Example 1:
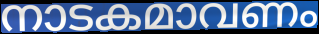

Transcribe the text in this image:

നാടകമാവണം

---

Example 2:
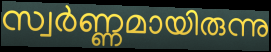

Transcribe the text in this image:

സ്വർണ്ണമായിരുന്നു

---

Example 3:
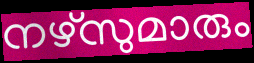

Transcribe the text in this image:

നഴ്സുമാരും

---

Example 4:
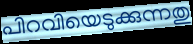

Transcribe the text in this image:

പിറവിയെടുക്കുന്നതു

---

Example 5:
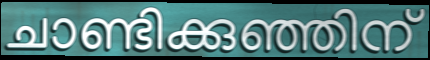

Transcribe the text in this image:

ചാണ്ടിക്കുഞ്ഞിന്